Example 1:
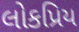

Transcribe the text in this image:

લોકપ્રિય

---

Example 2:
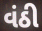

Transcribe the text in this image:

વંઠી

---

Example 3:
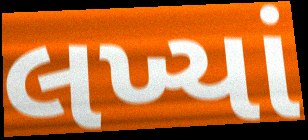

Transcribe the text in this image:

લખ્યાં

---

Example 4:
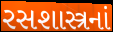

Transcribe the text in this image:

રસશાસ્ત્રનાં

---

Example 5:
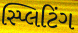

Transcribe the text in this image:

સ્પ્લિટિંગ